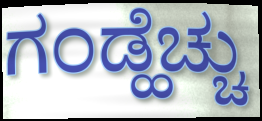
ಗಂಡ್ಹೆಚ್ಚು